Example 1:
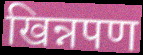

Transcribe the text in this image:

खिन्नपण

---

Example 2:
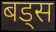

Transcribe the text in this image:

बड्स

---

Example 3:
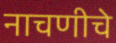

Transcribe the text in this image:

नाचणीचे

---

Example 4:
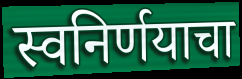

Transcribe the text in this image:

स्वनिर्णयाचा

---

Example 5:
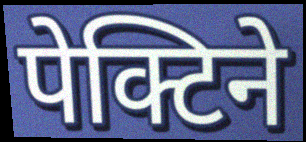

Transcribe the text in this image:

पेक्टिने